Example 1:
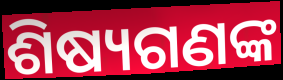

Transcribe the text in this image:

ଶିଷ୍ୟଗଣଙ୍କ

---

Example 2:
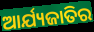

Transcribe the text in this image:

ଆର୍ଯ୍ୟଜାତିର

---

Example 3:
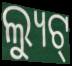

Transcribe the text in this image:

ଲ୍ୟୁଟ୍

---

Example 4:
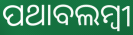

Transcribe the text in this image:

ପଥାବଲମ୍ବୀ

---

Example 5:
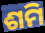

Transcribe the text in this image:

ଶମି